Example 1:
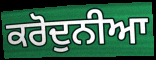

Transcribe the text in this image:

ਕਰੋਦੁਨੀਆ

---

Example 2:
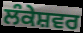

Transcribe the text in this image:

ਲੰਕੇਸ਼ਵਰ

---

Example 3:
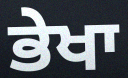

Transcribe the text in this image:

ਭੇਖਾ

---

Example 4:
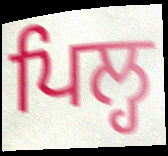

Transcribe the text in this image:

ਪਿਲ੍ਹ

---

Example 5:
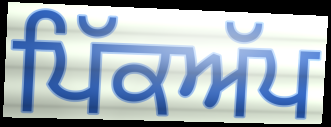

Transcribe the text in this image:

ਪਿੱਕਅੱਪ